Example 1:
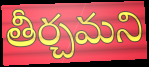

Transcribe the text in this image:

తీర్చమని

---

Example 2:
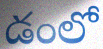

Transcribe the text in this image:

డంలో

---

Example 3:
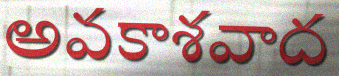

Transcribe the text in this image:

అవకాశవాద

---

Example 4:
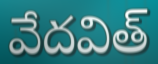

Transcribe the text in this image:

వేదవిత్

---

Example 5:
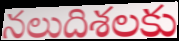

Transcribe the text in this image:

నలుదిశలకు